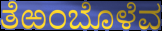
ತೆಱಂಬೊಳೆವ